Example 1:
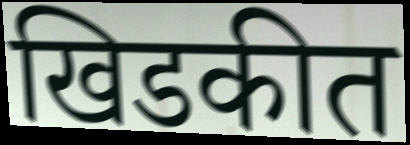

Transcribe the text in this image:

खिडकीत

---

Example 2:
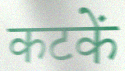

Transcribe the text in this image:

कटकें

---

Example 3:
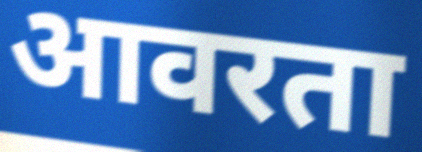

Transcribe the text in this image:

आवरता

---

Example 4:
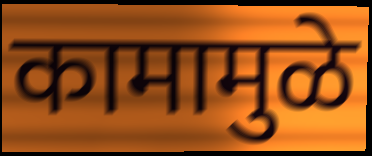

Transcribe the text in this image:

कामामुळे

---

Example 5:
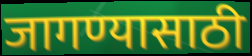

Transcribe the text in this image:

जागण्यासाठी